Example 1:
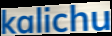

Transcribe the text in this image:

kalichu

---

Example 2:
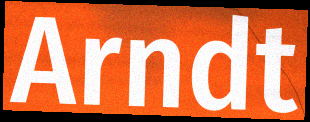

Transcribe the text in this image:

Arndt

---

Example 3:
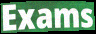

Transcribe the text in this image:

Exams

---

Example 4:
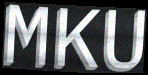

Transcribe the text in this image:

MKU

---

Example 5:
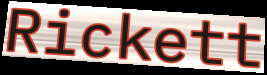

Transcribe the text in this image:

Rickett